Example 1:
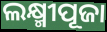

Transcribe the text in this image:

ଲକ୍ଷ୍ମୀପୂଜା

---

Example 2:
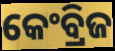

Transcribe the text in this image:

କେଂବ୍ରିଜ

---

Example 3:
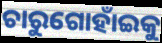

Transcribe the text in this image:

ଚାରୁଗୋହାଁଇକୁ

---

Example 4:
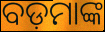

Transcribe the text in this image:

ବଡ଼ମାଙ୍କ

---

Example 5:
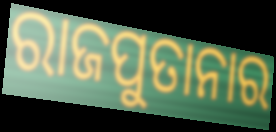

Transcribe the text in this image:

ରାଜପୁତାନାର